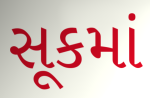
સૂકમાં